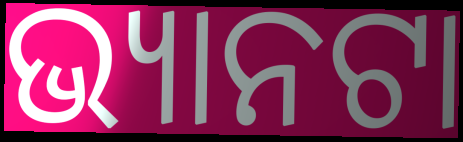
ଭ୍ୟାନଟା